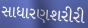
સાધારણશરીરી